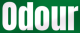
Odour